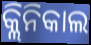
କ୍ଲିନିକାଲ